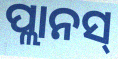
ପ୍ଲାନସ୍